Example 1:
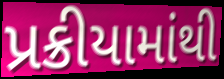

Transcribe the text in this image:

પ્રક્રીયામાંથી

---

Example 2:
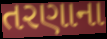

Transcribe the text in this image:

તરણાના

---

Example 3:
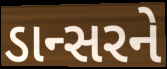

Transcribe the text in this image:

ડાન્સરને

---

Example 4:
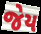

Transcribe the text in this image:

જેય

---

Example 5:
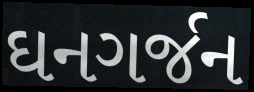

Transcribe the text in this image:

ઘનગર્જન